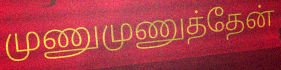
முணுமுணுத்தேன்